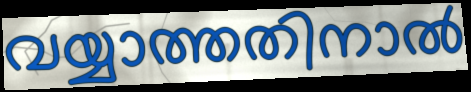
വയ്യാത്തതിനാൽ